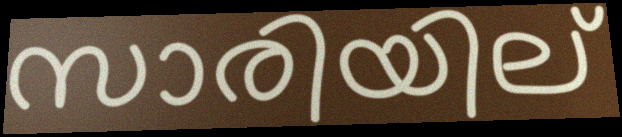
സാരിയില്